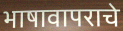
भाषावापराचे